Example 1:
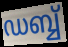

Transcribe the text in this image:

ഡബ്ബ്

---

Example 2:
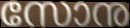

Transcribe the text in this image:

സോനു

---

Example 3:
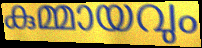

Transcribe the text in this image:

കുമ്മായവും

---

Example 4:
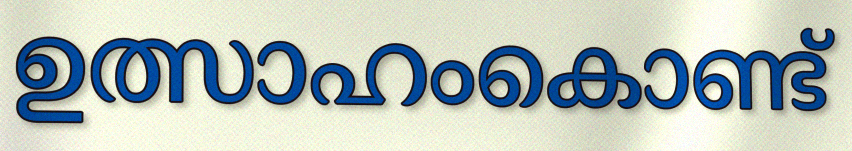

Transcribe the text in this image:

ഉത്സാഹംകൊണ്ട്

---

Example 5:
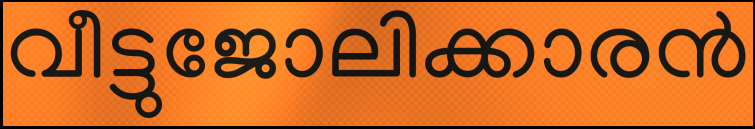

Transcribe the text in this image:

വീട്ടുജോലിക്കാരൻ